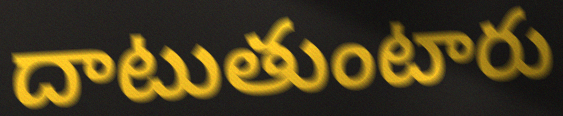
దాటుతుంటారు